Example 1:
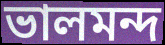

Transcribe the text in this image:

ভালমন্দ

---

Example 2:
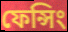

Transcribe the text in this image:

ফেন্সিং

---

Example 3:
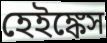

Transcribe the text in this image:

হেইঙ্কেস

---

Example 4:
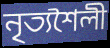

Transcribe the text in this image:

নৃত্যশৈলী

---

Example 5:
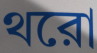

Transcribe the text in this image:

থরো